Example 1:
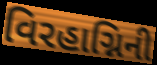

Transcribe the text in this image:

વિરહાગ્નિની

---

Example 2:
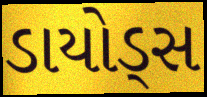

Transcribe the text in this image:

ડાયોડ્સ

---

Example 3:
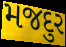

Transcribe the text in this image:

મજદુર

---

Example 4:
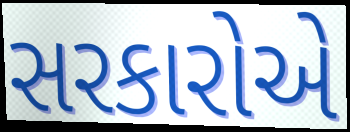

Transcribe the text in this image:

સરકારોએ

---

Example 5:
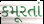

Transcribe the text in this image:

કમૂરતાં